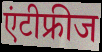
एंटीफ्रीज